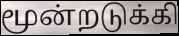
மூன்றடுக்கி